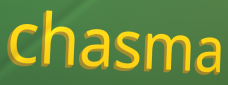
chasma